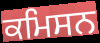
ਕਮਿਸਨ